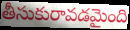
తీసుకురావడమైంది